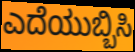
ಎದೆಯುಬ್ಬಿಸಿ